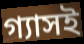
গ্যাসই